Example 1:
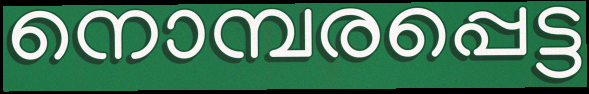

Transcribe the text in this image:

നൊമ്പരപ്പെട്ട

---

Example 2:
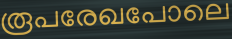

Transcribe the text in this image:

രൂപരേഖപോലെ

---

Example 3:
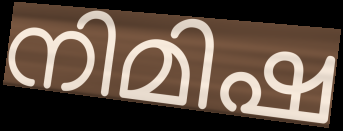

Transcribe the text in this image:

നിമിഷ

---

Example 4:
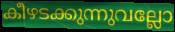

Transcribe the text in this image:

കീഴടക്കുന്നുവല്ലോ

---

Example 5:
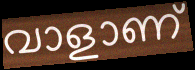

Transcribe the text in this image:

വാളാണ്